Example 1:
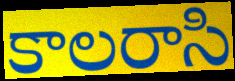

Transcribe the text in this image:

కాలరాసి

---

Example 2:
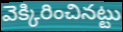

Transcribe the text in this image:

వెక్కిరించినట్టు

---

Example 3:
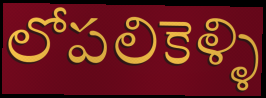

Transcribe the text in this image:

లోపలికెళ్ళి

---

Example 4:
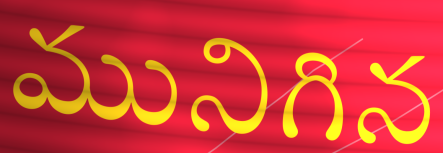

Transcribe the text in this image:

మునిగిన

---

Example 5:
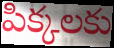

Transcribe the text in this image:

పిక్కలకు